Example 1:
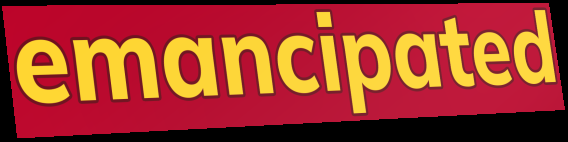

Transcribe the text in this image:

emancipated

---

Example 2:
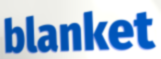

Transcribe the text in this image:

blanket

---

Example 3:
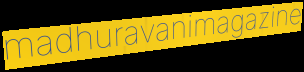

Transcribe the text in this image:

madhuravanimagazine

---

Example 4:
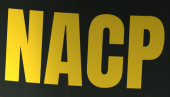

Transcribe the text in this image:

NACP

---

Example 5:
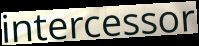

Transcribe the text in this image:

intercessor